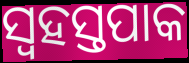
ସ୍ୱହସ୍ତପାକ